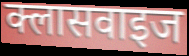
क्लासवाइज